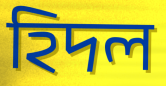
হিদল